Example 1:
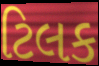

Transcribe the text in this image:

ટિલક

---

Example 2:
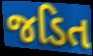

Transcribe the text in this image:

જડિત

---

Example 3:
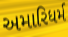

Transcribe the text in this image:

અમારિધર્મ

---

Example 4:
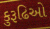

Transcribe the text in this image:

કુરૂઢિઓ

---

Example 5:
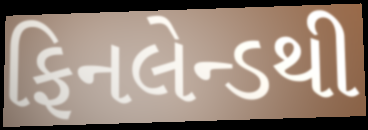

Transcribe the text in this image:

ફિનલેન્ડથી